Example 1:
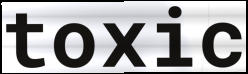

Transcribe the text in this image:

toxic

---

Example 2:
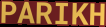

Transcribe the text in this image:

PARIKH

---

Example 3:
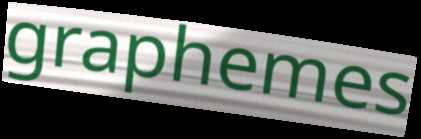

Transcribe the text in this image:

graphemes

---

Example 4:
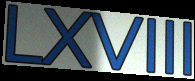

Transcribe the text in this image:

LXVIII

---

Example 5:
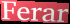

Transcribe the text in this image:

Ferar